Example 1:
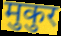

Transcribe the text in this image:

मुकुर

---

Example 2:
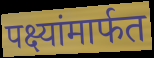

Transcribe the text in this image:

पक्ष्यांमार्फत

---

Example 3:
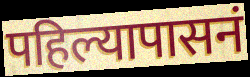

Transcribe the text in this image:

पहिल्यापासनं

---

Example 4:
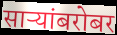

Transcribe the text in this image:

साऱ्यांबरोबर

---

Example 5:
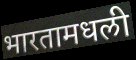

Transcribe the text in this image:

भारतामधली